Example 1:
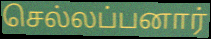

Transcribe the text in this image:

செல்லப்பனார்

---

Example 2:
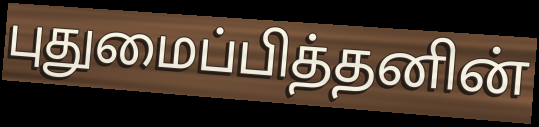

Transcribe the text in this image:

புதுமைப்பித்தனின்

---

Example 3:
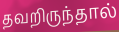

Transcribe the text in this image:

தவறிருந்தால்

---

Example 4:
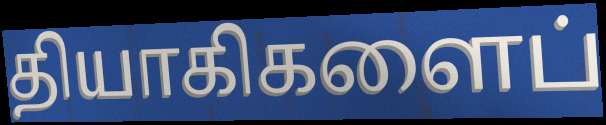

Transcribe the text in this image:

தியாகிகளைப்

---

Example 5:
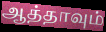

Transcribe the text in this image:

ஆத்தாவும்